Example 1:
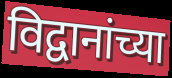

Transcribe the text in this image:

विद्वानांच्या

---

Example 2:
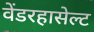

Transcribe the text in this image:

वेंडरहासेल्ट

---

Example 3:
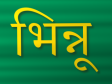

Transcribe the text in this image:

भिन्नू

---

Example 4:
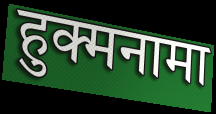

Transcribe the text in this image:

हुक्मनामा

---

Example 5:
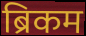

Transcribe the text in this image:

ब्रिकम